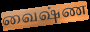
வைஷ்ண